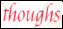
thoughs